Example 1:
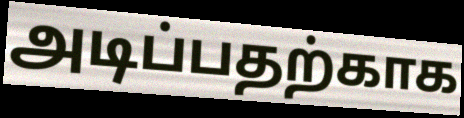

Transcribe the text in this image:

அடிப்பதற்காக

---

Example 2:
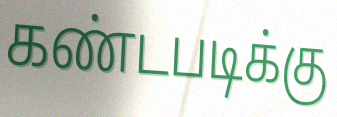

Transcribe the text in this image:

கண்டபடிக்கு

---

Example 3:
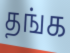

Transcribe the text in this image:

தங்க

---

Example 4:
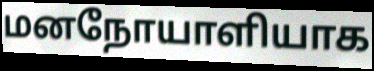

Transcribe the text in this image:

மனநோயாளியாக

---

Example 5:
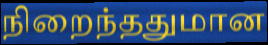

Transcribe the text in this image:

நிறைந்ததுமான